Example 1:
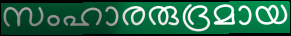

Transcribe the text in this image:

സംഹാരരുദ്രമായ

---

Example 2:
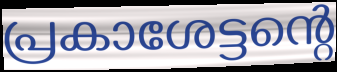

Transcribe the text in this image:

പ്രകാശേട്ടന്റെ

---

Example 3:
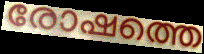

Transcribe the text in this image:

രോഷത്തെ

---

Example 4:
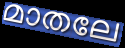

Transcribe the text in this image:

മാതലേ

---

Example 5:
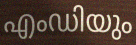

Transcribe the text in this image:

എംഡിയും